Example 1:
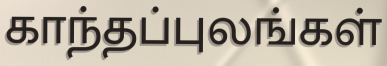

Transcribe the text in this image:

காந்தப்புலங்கள்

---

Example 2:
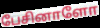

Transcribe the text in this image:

பேசினாளோ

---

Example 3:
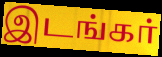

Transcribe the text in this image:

இடங்கர்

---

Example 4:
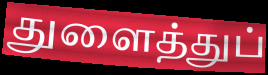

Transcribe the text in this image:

துளைத்துப்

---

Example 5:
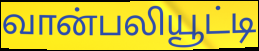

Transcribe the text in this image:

வான்பலியூட்டி